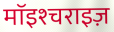
मॉइश्चराइज़